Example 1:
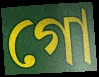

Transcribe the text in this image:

গো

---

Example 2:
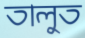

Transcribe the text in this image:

তালুত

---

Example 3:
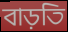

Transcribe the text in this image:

বাড়তি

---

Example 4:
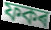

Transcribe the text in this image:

ফকৰ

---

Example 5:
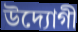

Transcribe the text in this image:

উদ্যোগী